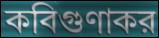
কবিগুণাকর